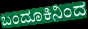
ಬಂದೂಕಿನಿಂದ